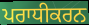
ਪਰਾਧੀਕਰਨ